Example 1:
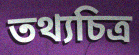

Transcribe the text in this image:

তথ্যচিত্ৰ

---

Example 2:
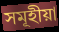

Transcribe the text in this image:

সমূহীয়া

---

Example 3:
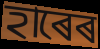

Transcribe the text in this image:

হাৰেৰ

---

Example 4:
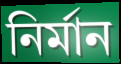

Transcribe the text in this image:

নিৰ্মান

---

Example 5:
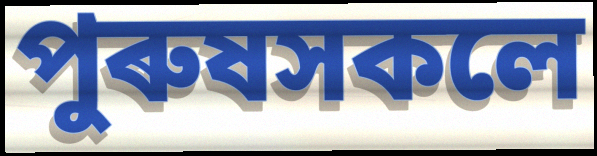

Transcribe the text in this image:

পুৰুষসকলে